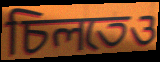
চিলতেও